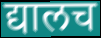
द्यालच